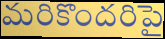
మరికొందరిపై